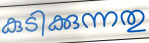
കുടിക്കുന്നതു